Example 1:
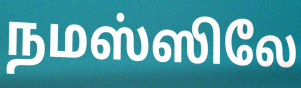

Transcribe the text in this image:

நமஸ்ஸிலே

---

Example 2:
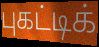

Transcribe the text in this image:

புகட்டிக்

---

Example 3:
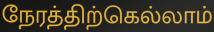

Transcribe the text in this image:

நேரத்திற்கெல்லாம்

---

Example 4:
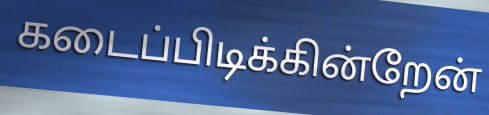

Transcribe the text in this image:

கடைப்பிடிக்கின்றேன்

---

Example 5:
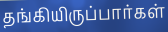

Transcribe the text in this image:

தங்கியிருப்பார்கள்